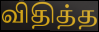
விதித்த